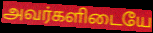
அவர்களிடையே